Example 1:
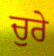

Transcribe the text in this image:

ਚੁਰੇ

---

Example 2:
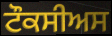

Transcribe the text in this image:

ਟੌਕਸੀਅਸ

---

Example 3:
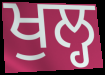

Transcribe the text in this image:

ਖੁਲ੍ਹ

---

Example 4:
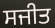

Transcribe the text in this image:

ਸਜੀਤ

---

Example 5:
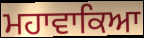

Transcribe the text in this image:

ਮਹਾਵਾਕਿਆ